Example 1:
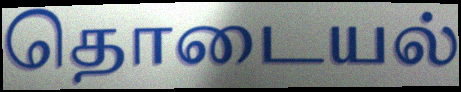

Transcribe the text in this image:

தொடையல்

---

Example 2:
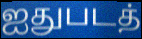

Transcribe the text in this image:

ஐதுபடத்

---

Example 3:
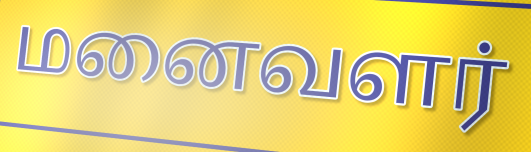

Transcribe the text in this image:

மனைவளர்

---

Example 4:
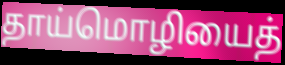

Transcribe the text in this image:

தாய்மொழியைத்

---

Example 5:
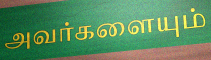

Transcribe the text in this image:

அவர்களையும்